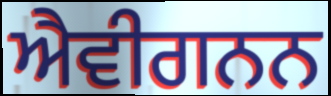
ਐਵੀਗਨਨ